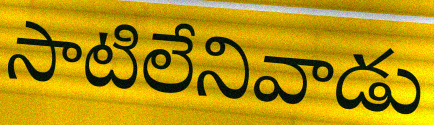
సాటిలేనివాడు